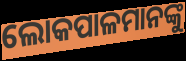
ଲୋକପାଳମାନଙ୍କୁ